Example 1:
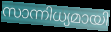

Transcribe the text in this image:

സാന്നിധ്യമായി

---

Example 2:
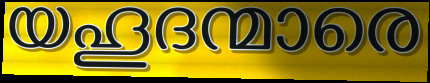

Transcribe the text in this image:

യഹൂദന്മാരെ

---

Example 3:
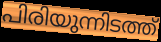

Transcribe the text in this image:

പിരിയുന്നിടത്ത്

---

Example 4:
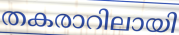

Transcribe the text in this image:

തകരാറിലായി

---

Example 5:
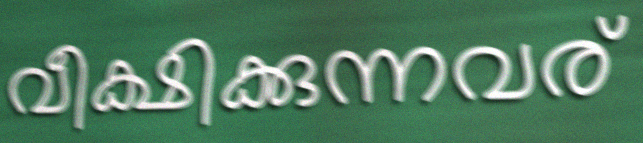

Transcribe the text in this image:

വീക്ഷിക്കുന്നവര്